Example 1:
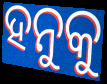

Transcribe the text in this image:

ହନୁକୁ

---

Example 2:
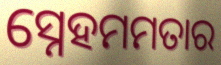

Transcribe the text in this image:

ସ୍ନେହମମତାର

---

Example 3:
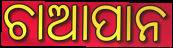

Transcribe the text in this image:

ଚାଆପାନ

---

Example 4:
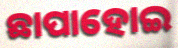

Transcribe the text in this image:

ଛାପାହୋଇ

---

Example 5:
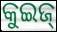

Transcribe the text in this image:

କୁଇଜ୍